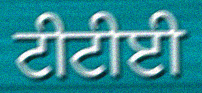
ਟੀਟੀਈ